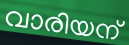
വാരിയന്